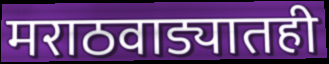
मराठवाड्यातही